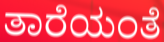
ತಾರೆಯಂತೆ